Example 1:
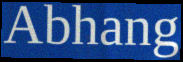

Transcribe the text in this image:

Abhang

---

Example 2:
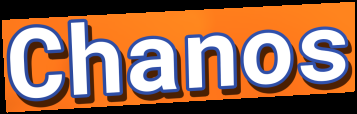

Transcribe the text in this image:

Chanos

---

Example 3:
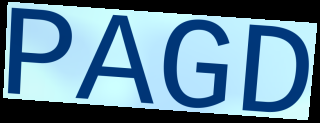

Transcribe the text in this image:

PAGD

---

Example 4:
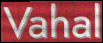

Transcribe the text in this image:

Vahal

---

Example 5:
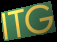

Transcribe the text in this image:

ITG